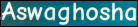
Aswaghosha